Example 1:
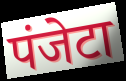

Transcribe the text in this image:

पंजेटा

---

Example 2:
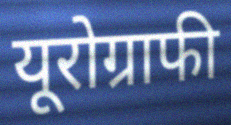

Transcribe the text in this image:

यूरोग्राफी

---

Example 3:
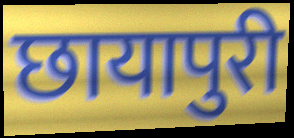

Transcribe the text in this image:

छायापुरी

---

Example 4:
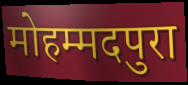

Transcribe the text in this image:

मोहम्मदपुरा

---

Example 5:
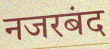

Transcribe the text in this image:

नजरबंद